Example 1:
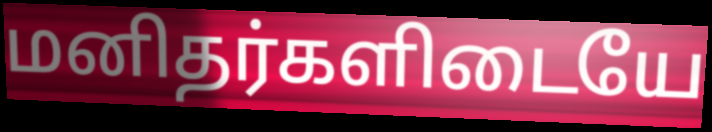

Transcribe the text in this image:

மனிதர்களிடையே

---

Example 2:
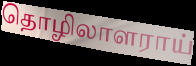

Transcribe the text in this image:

தொழிலாளராய்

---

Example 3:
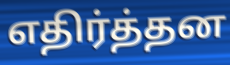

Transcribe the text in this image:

எதிர்த்தன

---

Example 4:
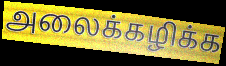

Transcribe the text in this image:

அலைக்கழிக்க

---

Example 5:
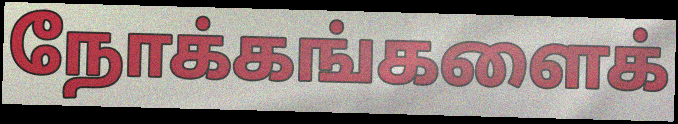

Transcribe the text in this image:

நோக்கங்களைக்